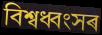
বিশ্বধ্বংসৰ